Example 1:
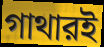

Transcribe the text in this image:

গাথারই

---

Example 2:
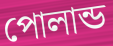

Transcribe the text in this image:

পোলান্ড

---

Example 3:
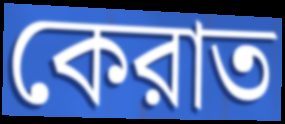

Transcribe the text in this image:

কেরাত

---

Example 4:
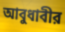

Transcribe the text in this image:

আবুধাবীর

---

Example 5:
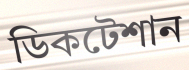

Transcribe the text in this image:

ডিকটেশান